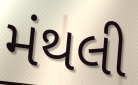
મંથલી